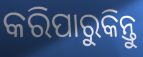
କରିପାରୁକିନ୍ତୁ